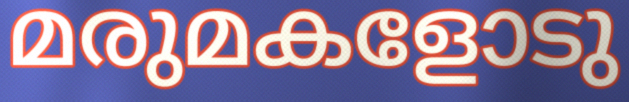
മരുമകളോടു